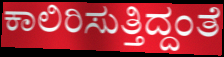
ಕಾಲಿರಿಸುತ್ತಿದ್ದಂತೆ